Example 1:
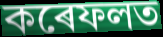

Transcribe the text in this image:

কৰেফলত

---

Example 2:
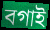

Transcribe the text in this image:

বগাই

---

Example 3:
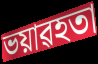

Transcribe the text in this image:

ভয়াৱহতা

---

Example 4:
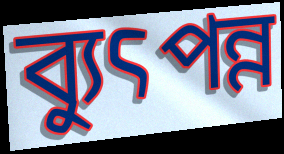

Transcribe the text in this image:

ব্যুৎপন্ন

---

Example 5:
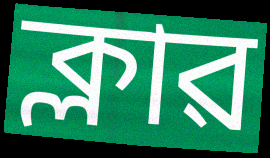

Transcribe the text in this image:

ক্লাৱ